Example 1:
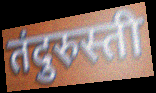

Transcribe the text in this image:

तंदुरुस्ती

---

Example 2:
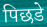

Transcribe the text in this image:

पिछडे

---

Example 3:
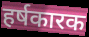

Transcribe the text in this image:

हर्षकारक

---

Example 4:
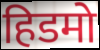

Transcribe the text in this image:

हिडमो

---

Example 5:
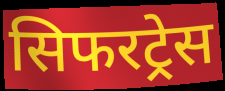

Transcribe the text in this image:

सिफरट्रेस